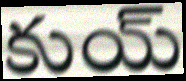
కుయ్